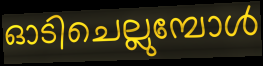
ഓടിചെല്ലുമ്പോൾ